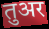
तुअर